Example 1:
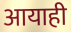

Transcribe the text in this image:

आयाही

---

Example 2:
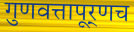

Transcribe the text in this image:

गुणवत्तापूर्णच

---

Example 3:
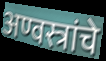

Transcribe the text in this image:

अण्वस्त्रांचे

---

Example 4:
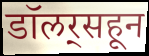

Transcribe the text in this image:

डॉलर्सहून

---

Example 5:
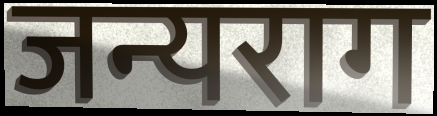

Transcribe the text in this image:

जन्यराग